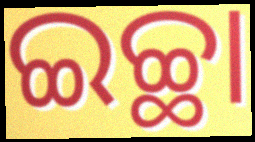
ଇଚ୍ଛା